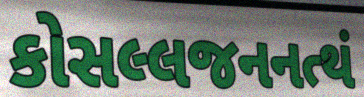
કોસલ્લજનનત્થં